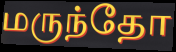
மருந்தோ